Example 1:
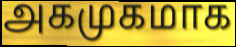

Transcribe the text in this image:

அகமுகமாக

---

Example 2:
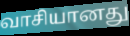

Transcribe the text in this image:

வாசியானது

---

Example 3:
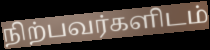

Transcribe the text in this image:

நிற்பவர்களிடம்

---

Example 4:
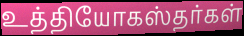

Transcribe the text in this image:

உத்தியோகஸ்தர்கள்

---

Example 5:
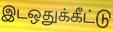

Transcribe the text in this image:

இடஒதுக்கீட்டு